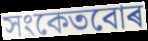
সংকেতবোৰ